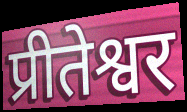
प्रीतेश्वर